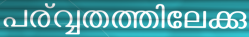
പര്വ്വതത്തിലേക്കു